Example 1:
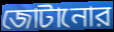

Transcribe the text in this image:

জোটানোর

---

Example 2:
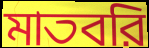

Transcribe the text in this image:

মাতবরি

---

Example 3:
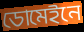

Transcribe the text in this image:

ডোমেইনে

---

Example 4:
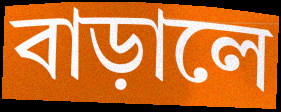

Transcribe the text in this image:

বাড়ালে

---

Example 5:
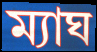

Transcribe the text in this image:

ম্যাঘ